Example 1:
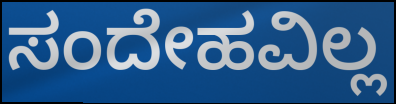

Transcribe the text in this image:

ಸಂದೇಹವಿಲ್ಲ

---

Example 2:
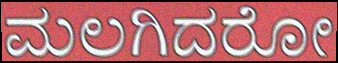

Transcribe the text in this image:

ಮಲಗಿದರೋ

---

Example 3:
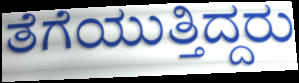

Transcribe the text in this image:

ತೆಗೆಯುತ್ತಿದ್ದರು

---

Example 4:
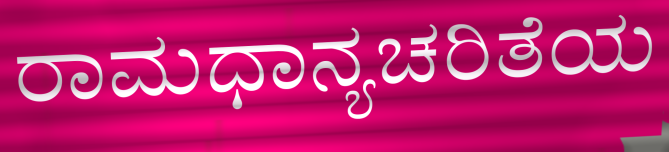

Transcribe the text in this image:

ರಾಮಧಾನ್ಯಚರಿತೆಯ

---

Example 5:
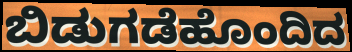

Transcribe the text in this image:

ಬಿಡುಗಡೆಹೊಂದಿದ